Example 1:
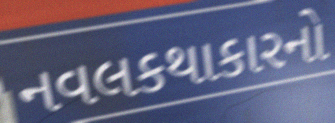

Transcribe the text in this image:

નવલકથાકારનો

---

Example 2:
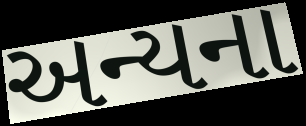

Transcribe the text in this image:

અન્યના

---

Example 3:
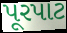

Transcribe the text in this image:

પૂરપાટ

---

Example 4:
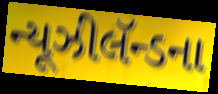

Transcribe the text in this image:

ન્યૂઝીલૅન્ડના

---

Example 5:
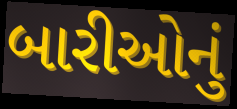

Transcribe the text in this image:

બારીઓનું